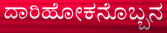
ದಾರಿಹೋಕನೊಬ್ಬನ